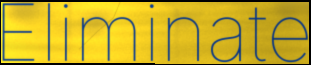
Eliminate